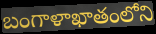
బంగాళాఖాతంలోని